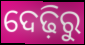
ଦେଢ଼ିରୁ